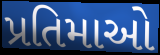
પ્રતિમાઓ